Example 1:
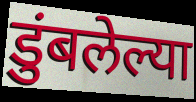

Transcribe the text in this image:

डुंबलेल्या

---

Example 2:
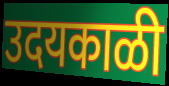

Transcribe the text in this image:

उदयकाळी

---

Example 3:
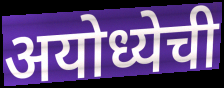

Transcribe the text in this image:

अयोध्येची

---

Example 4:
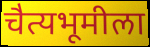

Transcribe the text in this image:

चैत्यभूमीला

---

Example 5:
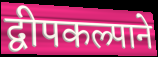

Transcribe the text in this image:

द्वीपकल्पाने